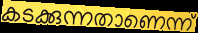
കടക്കുന്നതാണെന്ന്